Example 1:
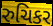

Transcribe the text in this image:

રુચિકર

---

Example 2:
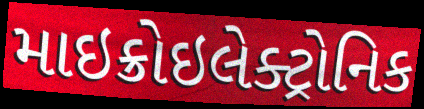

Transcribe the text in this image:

માઇક્રોઇલેક્ટ્રોનિક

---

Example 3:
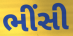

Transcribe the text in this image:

ભીંસી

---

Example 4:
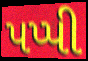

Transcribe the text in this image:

પપ્પી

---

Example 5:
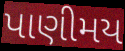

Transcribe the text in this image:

પાણીમય